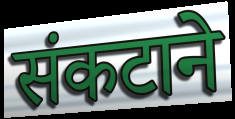
संकटाने